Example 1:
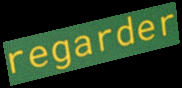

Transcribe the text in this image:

regarder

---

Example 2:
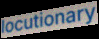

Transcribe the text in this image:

locutionary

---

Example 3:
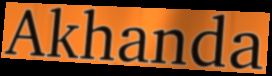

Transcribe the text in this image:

Akhanda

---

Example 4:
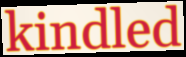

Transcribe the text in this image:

kindled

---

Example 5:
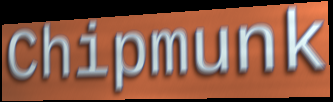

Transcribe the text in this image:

Chipmunk